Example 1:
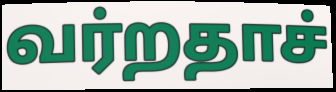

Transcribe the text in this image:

வர்றதாச்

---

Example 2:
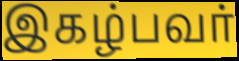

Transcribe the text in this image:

இகழ்பவர்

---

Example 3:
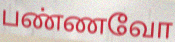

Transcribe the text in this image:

பண்ணவோ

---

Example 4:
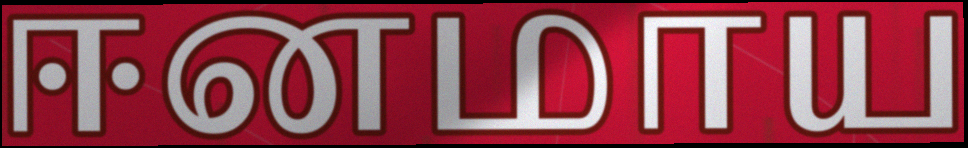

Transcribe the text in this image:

ஈனமாய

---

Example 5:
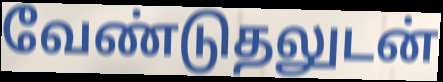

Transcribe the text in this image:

வேண்டுதலுடன்